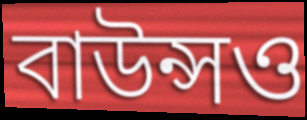
বাউন্সও